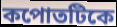
কপোতটিকে